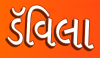
ડૅવિલા